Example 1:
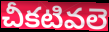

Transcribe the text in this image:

చీకటివలె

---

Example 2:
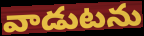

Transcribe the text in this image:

వాడుటను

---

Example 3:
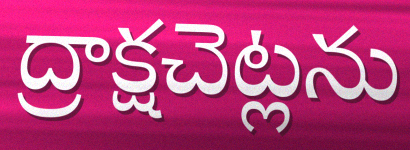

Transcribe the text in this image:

ద్రాక్షచెట్లను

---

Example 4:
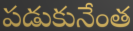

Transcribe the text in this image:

పడుకునేంత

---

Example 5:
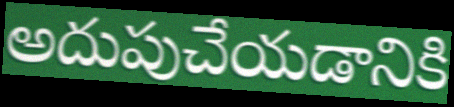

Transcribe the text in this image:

అదుపుచేయడానికి